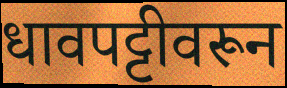
धावपट्टीवरून